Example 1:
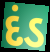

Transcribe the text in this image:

દંડ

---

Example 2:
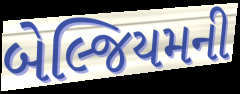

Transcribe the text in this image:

બેલ્જિયમની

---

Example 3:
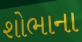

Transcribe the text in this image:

શોભાના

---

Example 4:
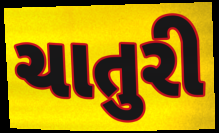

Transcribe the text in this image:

ચાતુરી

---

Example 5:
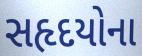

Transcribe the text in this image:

સહૃદયોના